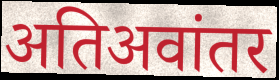
अतिअवांतर